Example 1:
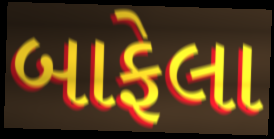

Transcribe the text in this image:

બાફેલા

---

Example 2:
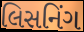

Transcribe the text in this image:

લિસનિંગ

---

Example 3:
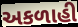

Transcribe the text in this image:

અકળાહી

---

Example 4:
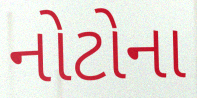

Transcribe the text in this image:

નોટોના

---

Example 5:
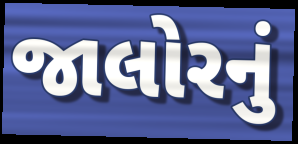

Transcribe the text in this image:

જાલોરનું